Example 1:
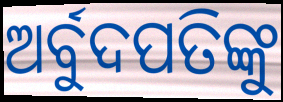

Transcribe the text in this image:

ଅର୍ବୁଦପତିଙ୍କୁ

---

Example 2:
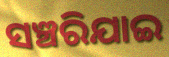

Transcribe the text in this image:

ସଞ୍ଚରିଯାଇ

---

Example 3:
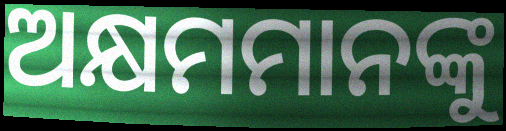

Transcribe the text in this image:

ଅକ୍ଷମମାନଙ୍କୁ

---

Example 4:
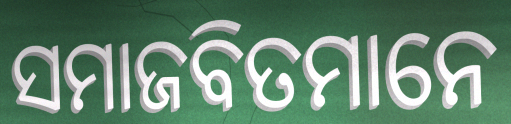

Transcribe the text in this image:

ସମାଜବିତମାନେ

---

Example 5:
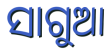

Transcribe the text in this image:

ସାଗୁଆ